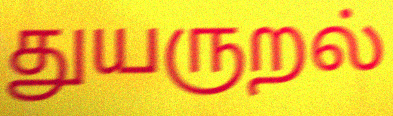
துயருறல்